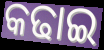
କଢାଇ